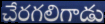
చేరగలిగాడు